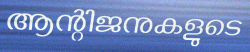
ആന്റിജനുകളുടെ